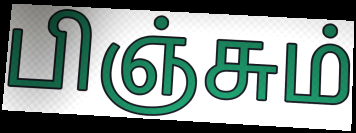
பிஞ்சும்